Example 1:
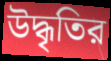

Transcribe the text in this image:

উদ্ধৃতির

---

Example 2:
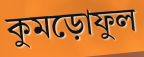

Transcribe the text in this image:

কুমড়োফুল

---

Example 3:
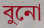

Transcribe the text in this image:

বুনো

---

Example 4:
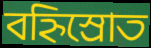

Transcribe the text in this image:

বহ্নিস্রোত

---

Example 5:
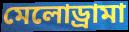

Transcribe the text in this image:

মেলোড্রামা